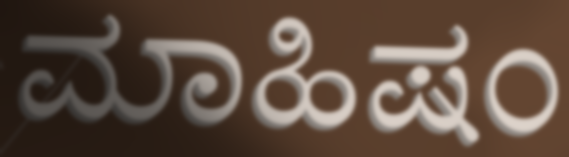
ಮಾಹಿಷಂ